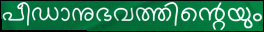
പീഡാനുഭവത്തിന്റെയും